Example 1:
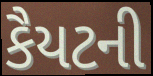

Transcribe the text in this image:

કૈયટની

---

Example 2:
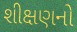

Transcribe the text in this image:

શીક્ષણનો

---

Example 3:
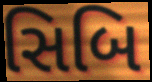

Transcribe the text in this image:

સિબિ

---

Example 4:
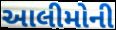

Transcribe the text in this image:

આલીમોની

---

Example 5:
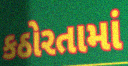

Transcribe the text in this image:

કઠોરતામાં